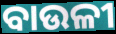
ବାଉଳୀ